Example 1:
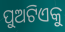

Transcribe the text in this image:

ପୁଅଟିଏକୁ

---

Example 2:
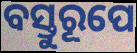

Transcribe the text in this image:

ବସ୍ତୁରୂପେ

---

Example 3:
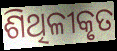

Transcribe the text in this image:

ଶିଥିଳୀକୃତ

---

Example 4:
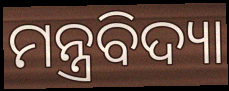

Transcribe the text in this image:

ମନ୍ତ୍ରବିଦ୍ୟା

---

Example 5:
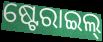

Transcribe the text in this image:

ଷ୍ଟେରାଇଲ୍